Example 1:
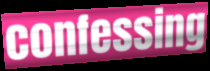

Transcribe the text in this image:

confessing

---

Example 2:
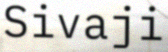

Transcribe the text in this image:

Sivaji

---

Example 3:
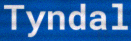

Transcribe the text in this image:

Tyndal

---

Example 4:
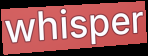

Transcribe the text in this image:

whisper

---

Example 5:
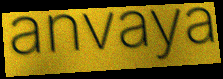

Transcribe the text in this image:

anvaya